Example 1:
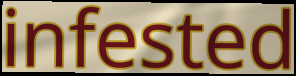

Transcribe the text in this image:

infested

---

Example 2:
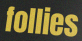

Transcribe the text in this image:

follies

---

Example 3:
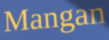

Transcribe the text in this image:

Mangan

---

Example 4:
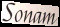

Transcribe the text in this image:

Sonam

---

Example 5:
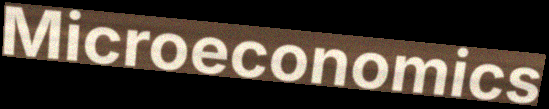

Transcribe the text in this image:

Microeconomics